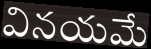
వినయమే